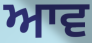
ਆਵ